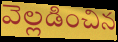
వెల్లడించిన